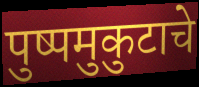
पुष्पमुकुटाचे